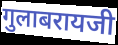
गुलाबरायजी